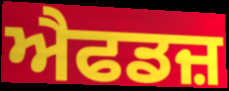
ਐਫਡਜ਼